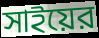
সাইয়ের